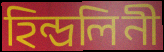
হিন্দ্রলিনী